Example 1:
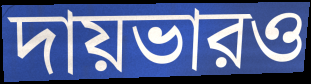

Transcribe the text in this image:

দায়ভারও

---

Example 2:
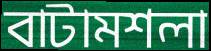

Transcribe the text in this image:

বাটামশলা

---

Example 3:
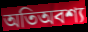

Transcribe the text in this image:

অতিঅবশ্য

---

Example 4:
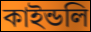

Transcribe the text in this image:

কাইন্ডলি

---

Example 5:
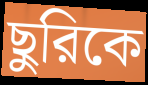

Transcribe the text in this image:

ছুরিকে